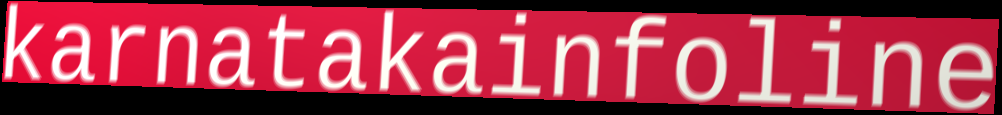
karnatakainfoline